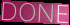
DONE